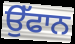
ਉੱਫਾਨ